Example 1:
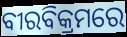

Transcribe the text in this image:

ବୀରବିକ୍ରମରେ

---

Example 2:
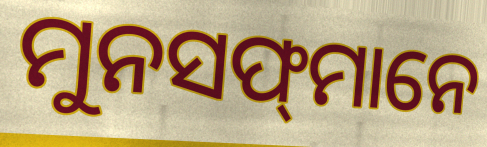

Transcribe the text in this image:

ମୁନସଫ୍‍ମାନେ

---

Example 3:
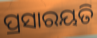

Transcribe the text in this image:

ପ୍ରସାରୟତି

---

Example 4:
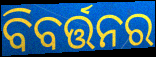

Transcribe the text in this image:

ବିବର୍ତ୍ତନର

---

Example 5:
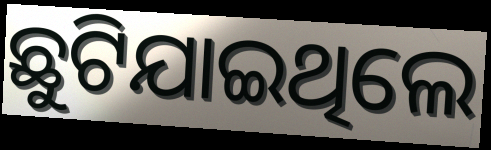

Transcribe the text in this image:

ଛୁଟିଯାଇଥିଲେ